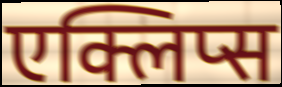
एक्लिप्स